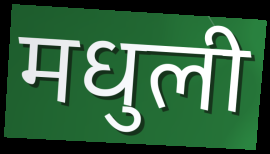
मधुली